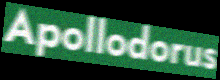
Apollodorus